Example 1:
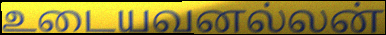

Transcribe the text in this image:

உடையவனல்லன்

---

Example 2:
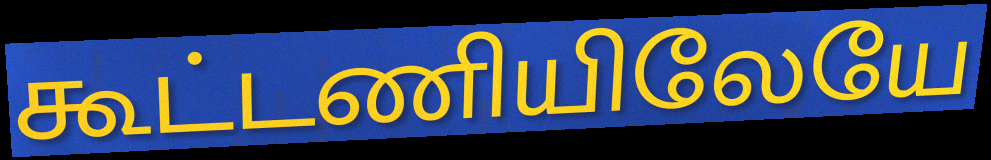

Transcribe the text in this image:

கூட்டணியிலேயே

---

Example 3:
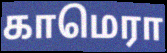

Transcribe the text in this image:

காமெரா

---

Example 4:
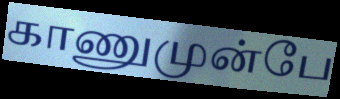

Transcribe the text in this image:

காணுமுன்பே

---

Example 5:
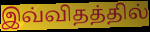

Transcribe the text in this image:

இவ்விதத்தில்